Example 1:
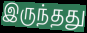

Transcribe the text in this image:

இருந்தது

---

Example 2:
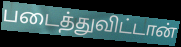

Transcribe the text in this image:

படைத்துவிட்டான்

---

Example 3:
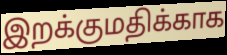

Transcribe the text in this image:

இறக்குமதிக்காக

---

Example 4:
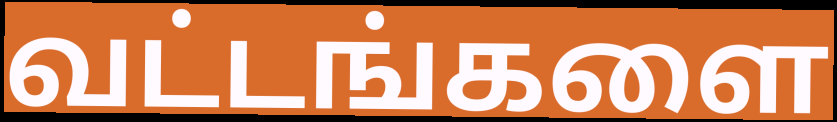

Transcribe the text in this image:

வட்டங்களை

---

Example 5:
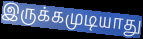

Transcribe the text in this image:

இருக்கமுடியாது